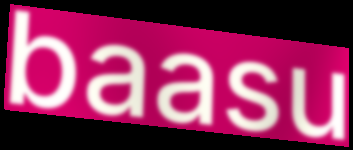
baasu